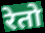
रेतो